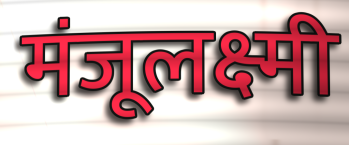
मंजूलक्ष्मी